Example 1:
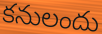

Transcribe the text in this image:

కనులందు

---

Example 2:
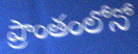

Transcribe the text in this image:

ప్రాంతంలోనో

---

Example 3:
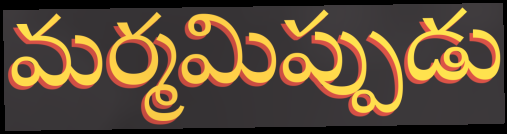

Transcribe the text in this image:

మర్మమిప్పుడు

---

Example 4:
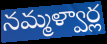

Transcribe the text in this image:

నమ్మళ్వార్ల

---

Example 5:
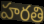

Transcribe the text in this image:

హరతి